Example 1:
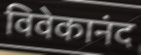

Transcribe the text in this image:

विवेकानंद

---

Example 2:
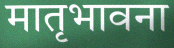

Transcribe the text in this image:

मातृभावना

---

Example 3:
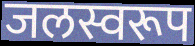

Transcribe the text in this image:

जलस्वरूप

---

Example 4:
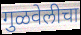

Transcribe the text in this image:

गुळवेलीचा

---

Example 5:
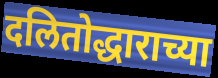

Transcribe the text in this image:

दलितोद्धाराच्या